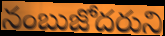
నంబుజోదరుని